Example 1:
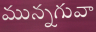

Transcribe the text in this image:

మున్నగువా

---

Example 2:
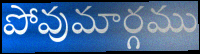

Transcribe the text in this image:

పోవుమార్గము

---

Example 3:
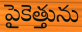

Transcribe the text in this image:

పైకెత్తును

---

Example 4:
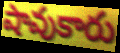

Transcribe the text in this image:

షావుకారు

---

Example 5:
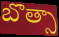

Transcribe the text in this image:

బొత్సా